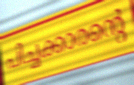
പിച്ചക്കാരന്റെ